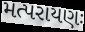
મત્પરાયણઃ